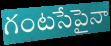
గంటసేపైనా